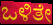
ಒಳಿತೇ